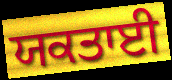
ਯਕਤਾਈ